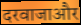
दरवाजाऔर